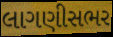
લાગણીસભર